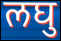
लघु